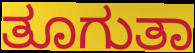
ತೂಗುತಾ